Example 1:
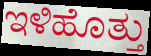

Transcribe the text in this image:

ಇಳಿಹೊತ್ತು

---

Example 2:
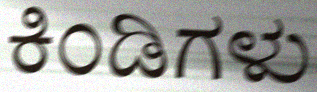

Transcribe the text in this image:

ಕಿಂಡಿಗಳು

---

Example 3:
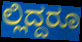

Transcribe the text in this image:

ಲ್ಲಿದ್ದರೂ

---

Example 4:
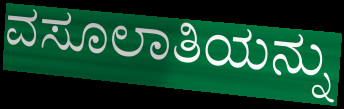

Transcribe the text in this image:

ವಸೂಲಾತಿಯನ್ನು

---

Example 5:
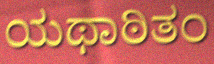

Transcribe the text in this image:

ಯಥಾಠಿತಂ